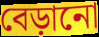
বেড়ানো